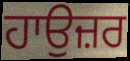
ਹਾਉਜ਼ਰ